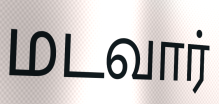
மடவார்